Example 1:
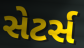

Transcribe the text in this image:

સેટર્સ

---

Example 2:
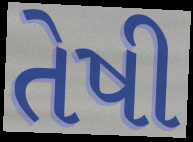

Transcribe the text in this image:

તેષી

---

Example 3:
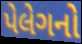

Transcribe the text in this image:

પેલેગનો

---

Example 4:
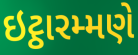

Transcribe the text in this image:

ઇટ્ઠારમ્મણે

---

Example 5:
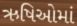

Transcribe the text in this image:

ઋષિઓમાં